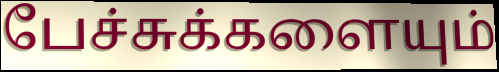
பேச்சுக்களையும்